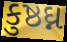
કુષ્ઠઘ્ન